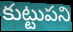
కుట్టుపని